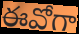
ఈవోగా